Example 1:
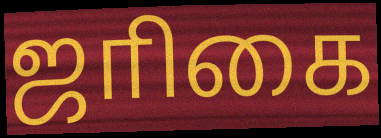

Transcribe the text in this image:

ஜரிகை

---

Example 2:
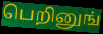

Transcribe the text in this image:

பெறினுங்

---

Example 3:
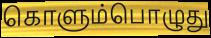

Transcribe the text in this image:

கொளும்பொழுது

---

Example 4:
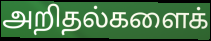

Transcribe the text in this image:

அறிதல்களைக்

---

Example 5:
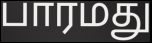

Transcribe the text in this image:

பாரமது